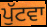
ਪੁੱਟਵਾ